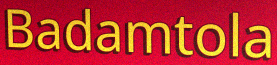
Badamtola